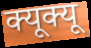
क्यूक्यू